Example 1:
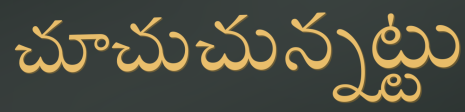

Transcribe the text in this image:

చూచుచున్నట్టు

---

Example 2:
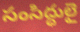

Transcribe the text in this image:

సంసిద్ధులై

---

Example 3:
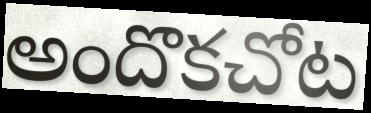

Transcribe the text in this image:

అందొకచోట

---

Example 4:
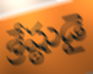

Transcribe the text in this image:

శ్రేష్ఠుడై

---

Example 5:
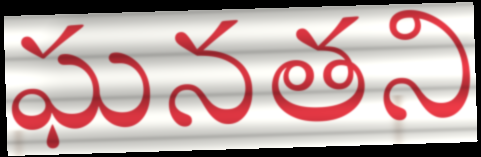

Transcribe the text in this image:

ఘనతని